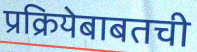
प्रक्रियेबाबतची